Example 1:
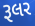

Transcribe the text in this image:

રૂલર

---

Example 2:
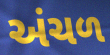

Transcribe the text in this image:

અંચળ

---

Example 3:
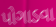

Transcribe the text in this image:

પોગાડવા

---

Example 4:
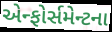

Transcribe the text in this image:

એન્ફોર્સમેન્ટના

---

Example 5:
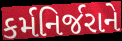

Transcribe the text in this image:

કર્મનિર્જરાને